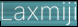
Laxmiji